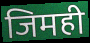
जिमही